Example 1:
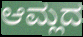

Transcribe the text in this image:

ಆಮ್ಲದ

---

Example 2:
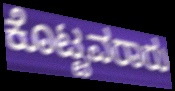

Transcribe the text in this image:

ಕೊಟ್ಟವರಾರು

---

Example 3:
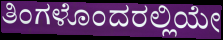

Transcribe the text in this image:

ತಿಂಗಳೊಂದರಲ್ಲಿಯೇ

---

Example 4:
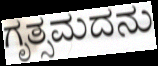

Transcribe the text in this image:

ಗೃತ್ಸಮದನು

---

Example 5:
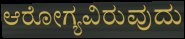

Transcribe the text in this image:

ಆರೋಗ್ಯವಿರುವುದು